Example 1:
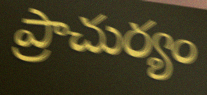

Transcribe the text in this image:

ప్రాచుర్యం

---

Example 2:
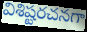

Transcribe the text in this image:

విశిష్టరచనగా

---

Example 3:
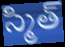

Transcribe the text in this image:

స్మిత్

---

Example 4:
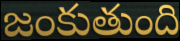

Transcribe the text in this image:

జంకుతుంది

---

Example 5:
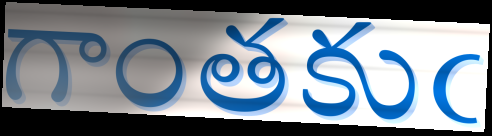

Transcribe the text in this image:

గాంతకుఁ